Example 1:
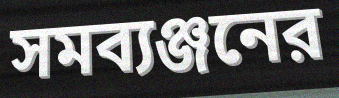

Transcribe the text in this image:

সমব্যঞ্জনের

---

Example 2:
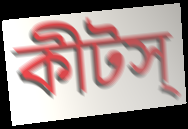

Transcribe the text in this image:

কীটস্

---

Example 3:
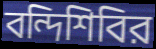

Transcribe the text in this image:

বন্দিশিবির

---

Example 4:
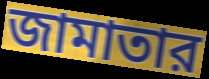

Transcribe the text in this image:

জামাতার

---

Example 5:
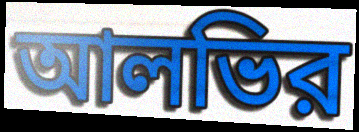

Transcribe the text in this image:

আলভির